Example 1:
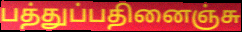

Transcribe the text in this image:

பத்துப்பதினைஞ்சு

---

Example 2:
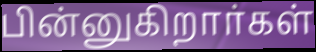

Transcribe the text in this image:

பின்னுகிறார்கள்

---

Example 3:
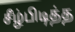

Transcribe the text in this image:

சீழ்பிடித்த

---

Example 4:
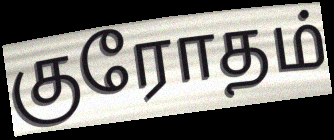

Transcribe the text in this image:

குரோதம்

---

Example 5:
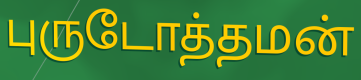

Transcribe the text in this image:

புருடோத்தமன்